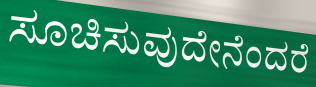
ಸೂಚಿಸುವುದೇನೆಂದರೆ